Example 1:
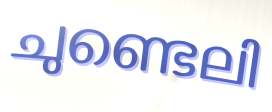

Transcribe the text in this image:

ചുണ്ടെലി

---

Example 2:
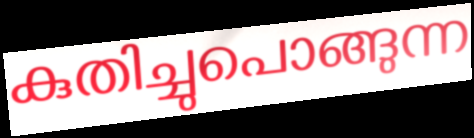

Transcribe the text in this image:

കുതിച്ചുപൊങ്ങുന്ന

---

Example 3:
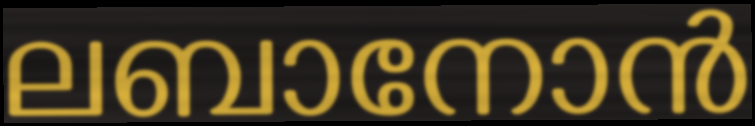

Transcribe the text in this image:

ലബാനോൻ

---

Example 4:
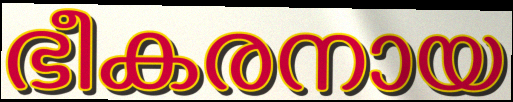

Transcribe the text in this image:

ഭീകരനായ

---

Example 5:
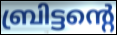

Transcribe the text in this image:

ബ്രിട്ടന്റെ